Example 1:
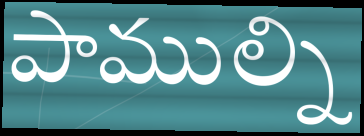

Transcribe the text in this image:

పాముల్ని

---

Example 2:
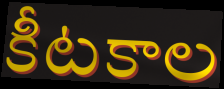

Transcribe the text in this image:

కీటకాల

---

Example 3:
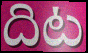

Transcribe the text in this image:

దిట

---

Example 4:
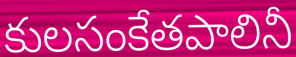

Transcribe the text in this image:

కులసంకేతపాలినీ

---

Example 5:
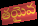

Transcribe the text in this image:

తయైవ